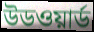
উডওয়ার্ড